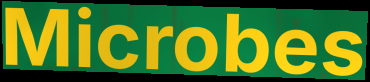
Microbes